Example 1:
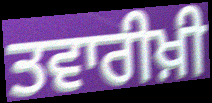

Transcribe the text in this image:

ਤਵਾਰੀਖ਼ੀ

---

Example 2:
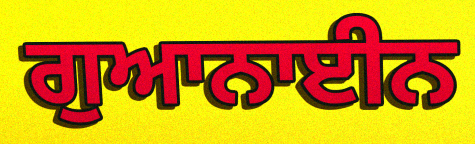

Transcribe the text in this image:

ਗੁਆਨਾਈਨ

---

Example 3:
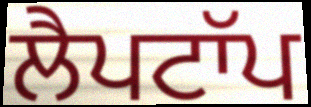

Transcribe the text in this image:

ਲੈਪਟਾੱਪ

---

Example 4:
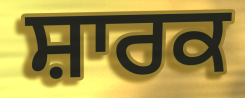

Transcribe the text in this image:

ਸ਼ਾਰਕ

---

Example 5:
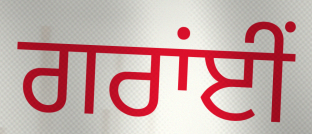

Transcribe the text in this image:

ਗਰਾਂਈਂ